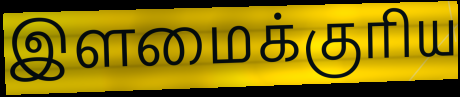
இளமைக்குரிய